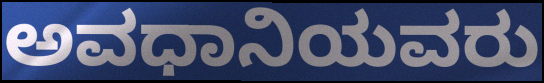
ಅವಧಾನಿಯವರು